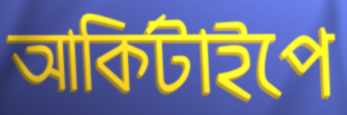
আর্কিটাইপে